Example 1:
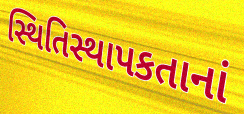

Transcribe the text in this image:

સ્થિતિસ્થાપકતાનાં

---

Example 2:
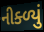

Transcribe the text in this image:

નીક્ળ્યું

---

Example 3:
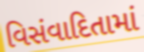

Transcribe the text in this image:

વિસંવાદિતામાં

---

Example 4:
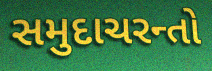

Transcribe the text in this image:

સમુદાચરન્તો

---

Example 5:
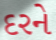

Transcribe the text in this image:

દરને